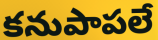
కనుపాపలే